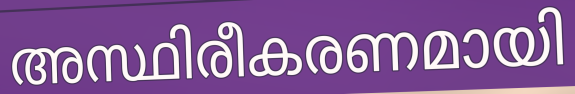
അസ്ഥിരീകരണമായി